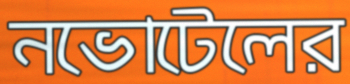
নভোটেলের